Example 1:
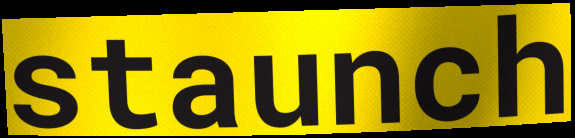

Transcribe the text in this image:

staunch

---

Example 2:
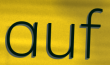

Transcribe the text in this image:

auf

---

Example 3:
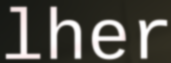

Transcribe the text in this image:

lher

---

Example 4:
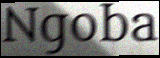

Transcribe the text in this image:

Ngoba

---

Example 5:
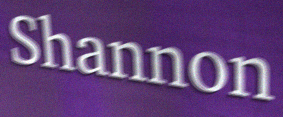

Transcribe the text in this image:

Shannon